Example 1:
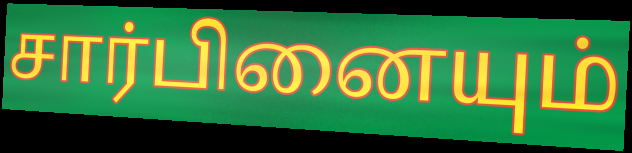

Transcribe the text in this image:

சார்பினையும்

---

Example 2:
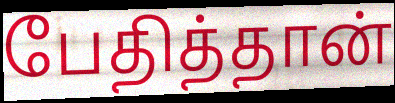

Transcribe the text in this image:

பேதித்தான்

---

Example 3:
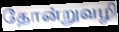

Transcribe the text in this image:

தோன்றுவழி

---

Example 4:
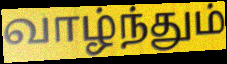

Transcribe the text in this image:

வாழ்ந்தும்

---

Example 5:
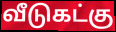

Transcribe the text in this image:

வீடுகட்கு